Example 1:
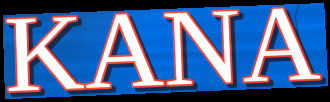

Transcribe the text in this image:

KANA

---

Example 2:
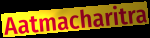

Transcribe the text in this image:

Aatmacharitra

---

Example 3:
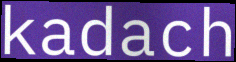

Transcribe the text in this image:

kadach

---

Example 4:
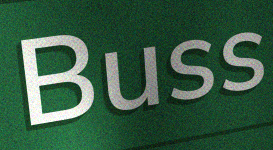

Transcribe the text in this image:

Buss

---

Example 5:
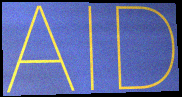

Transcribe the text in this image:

AID